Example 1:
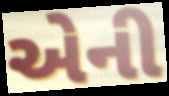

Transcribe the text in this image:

એની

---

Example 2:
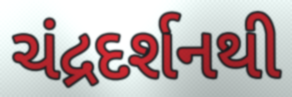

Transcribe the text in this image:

ચંદ્રદર્શનથી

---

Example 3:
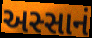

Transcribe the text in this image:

અસ્સાનં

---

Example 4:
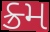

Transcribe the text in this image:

ક્ર્મ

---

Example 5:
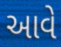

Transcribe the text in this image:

આવે